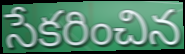
సేకరించిన